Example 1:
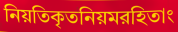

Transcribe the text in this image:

নিয়তিকৃতনিয়মরহিতাং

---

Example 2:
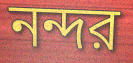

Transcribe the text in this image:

নন্দর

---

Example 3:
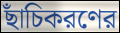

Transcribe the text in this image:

ছাঁচিকরণের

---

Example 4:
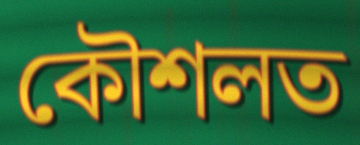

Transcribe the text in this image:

কৌশলত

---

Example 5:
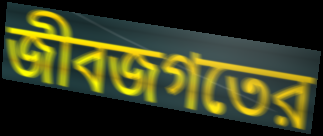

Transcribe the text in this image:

জীবজগতের